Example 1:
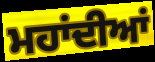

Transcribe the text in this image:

ਮਹਾਂਦੀਆਂ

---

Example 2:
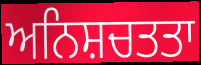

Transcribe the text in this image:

ਅਨਿਸ਼ਚਤਤਾ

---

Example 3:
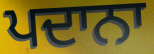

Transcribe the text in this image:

ਪਦਾਨਾ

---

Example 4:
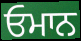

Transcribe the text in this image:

ਓਮਾਨ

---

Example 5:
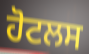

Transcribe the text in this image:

ਹੋਟਲਸ